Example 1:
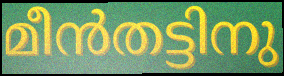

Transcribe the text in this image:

മീൻതട്ടിനു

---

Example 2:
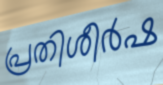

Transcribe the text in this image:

പ്രതിശീർഷ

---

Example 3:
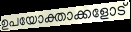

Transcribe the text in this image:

ഉപയോക്താക്കളോട്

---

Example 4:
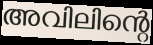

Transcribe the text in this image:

അവിലിന്റെ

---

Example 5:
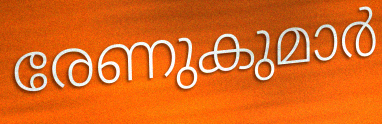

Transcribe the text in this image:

രേണുകുമാർ